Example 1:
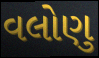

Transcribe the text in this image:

વલોણુ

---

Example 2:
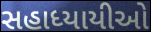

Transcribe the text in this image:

સહાધ્યાયીઓ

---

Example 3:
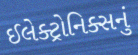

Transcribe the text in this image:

ઈલેક્ટ્રોનિક્સનું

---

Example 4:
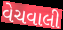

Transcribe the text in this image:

વેચવાલી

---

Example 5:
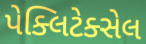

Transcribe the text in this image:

પેક્લિટેક્સેલ